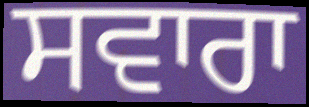
ਸਵਾਰਾ